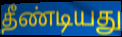
தீண்டியது